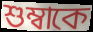
শুম্বাকে